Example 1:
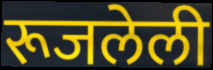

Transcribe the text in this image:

रूजलेली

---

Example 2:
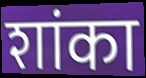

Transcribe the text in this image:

शांका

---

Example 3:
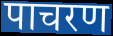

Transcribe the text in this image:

पाचरण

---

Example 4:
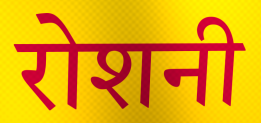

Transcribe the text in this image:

रोशनी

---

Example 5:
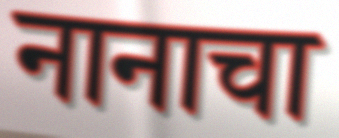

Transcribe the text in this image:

नानाचा